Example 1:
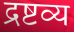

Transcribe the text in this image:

द्रष्टव्य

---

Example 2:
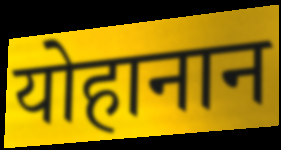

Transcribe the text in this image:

योहानान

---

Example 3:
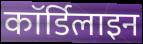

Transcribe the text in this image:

कॉर्डिलाइन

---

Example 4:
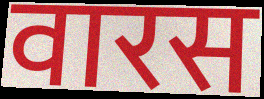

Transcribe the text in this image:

वारस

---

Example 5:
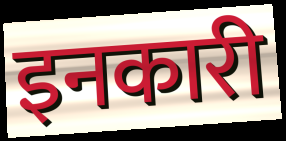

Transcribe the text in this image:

इनकारी